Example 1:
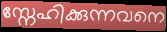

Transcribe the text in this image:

സ്നേഹിക്കുന്നവനെ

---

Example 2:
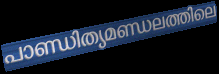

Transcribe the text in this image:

പാണ്ഡിത്യമണ്ഡലത്തിലെ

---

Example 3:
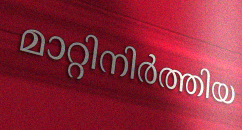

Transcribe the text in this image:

മാറ്റിനിർത്തിയ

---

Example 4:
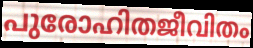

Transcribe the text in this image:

പുരോഹിതജീവിതം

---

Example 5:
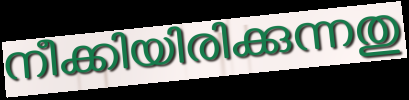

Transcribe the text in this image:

നീക്കിയിരിക്കുന്നതു